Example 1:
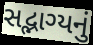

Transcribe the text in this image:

સદ્ભાગ્યનું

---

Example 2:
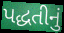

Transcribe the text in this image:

પદ્ધતીનું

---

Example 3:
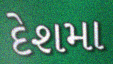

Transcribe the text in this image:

દેશમા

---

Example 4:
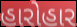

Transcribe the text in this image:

હારોહાર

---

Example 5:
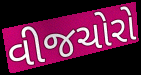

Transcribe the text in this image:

વીજચોરો